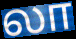
லா